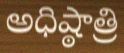
అధిష్ఠాత్రి